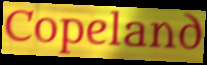
Copeland